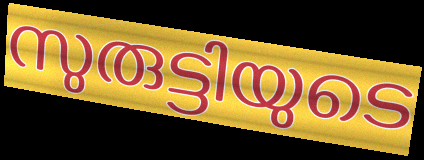
സുരുട്ടിയുടെ